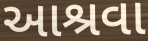
આશ્રવા